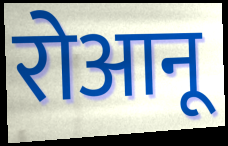
रोआनू